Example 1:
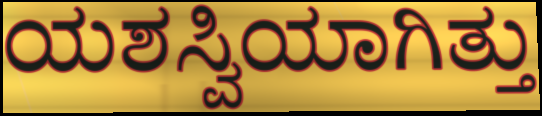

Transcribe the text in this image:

ಯಶಸ್ವಿಯಾಗಿತ್ತು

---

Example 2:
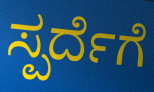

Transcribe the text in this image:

ಸ್ಪರ್ದೆಗೆ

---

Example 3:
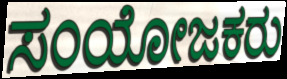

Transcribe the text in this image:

ಸಂಯೋಜಕರು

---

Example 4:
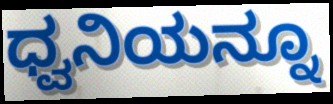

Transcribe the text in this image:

ಧ್ವನಿಯನ್ನೂ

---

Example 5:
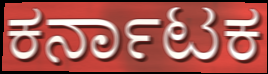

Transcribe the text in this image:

ಕರ್ನಾಟಕ